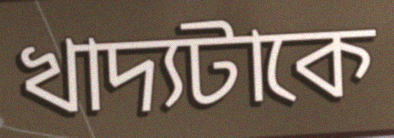
খাদ্যটাকে